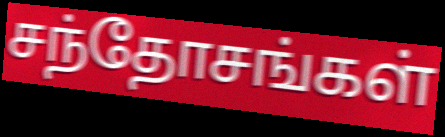
சந்தோசங்கள்